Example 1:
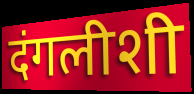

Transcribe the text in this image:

दंगलीशी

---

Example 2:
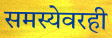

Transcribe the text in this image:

समस्येवरही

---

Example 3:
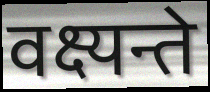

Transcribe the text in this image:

वक्ष्यन्ते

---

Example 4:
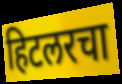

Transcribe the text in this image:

हिटलरचा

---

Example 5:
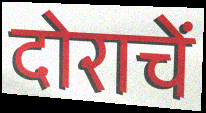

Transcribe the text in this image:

दोराचें